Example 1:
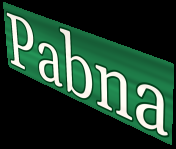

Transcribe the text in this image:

Pabna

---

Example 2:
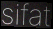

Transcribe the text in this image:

sifat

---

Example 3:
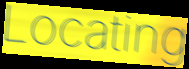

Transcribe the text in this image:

Locating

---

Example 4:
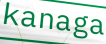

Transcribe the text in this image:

kanaga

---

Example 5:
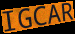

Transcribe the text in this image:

IGCAR